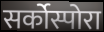
सर्कोस्पोरा